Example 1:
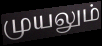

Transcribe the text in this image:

முயலும்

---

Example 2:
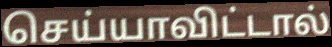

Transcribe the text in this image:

செய்யாவிட்டால்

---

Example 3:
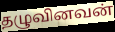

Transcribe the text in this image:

தழுவினவன்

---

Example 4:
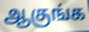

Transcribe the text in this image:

ஆகுங்க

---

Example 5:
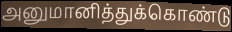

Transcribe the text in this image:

அனுமானித்துக்கொண்டு